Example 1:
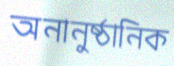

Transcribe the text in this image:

অনানুষ্ঠানিক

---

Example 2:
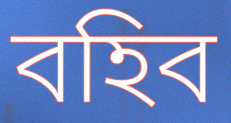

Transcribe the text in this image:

বহিব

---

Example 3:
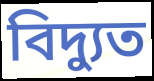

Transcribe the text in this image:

বিদ্যুত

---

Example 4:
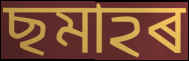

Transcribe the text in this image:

ছমাহৰ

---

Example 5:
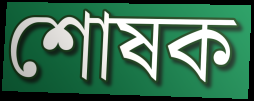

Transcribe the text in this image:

শোষক